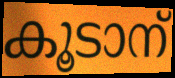
കൂടാന്